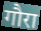
गौरा